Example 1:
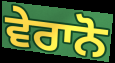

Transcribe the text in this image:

ਵੇਰਾਨੋ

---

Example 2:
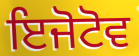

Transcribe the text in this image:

ਇਜੋਟੋਵ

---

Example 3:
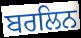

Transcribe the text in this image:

ਬਰਲਿਨ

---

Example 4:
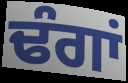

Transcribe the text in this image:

ਢੰਗਾਂ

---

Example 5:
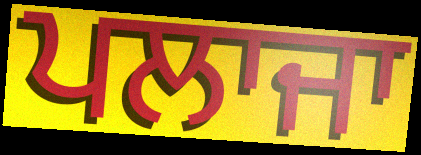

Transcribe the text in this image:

ਪਲਾਜਾ